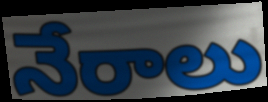
నేరాలు